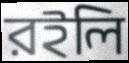
রইলি